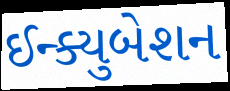
ઈન્ક્યુબેશન